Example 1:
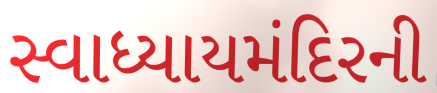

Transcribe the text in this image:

સ્વાધ્યાયમંદિરની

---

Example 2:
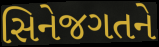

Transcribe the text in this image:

સિનેજગતને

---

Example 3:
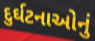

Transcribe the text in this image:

દુર્ઘટનાઓનું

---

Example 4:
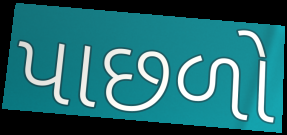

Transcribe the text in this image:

પાછળો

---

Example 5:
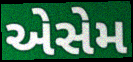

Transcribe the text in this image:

એસેમ